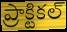
ప్రాక్టికల్